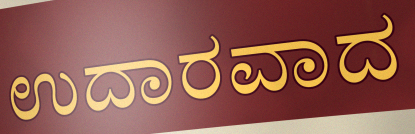
ಉದಾರವಾದ